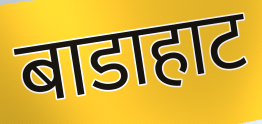
बाडाहाट